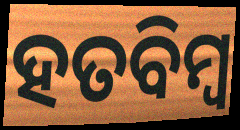
ହତବିମ୍ବ